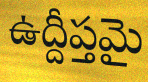
ఉద్దీప్తమై